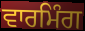
ਵਾਰਮਿੰਗ